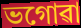
ভগোৱা